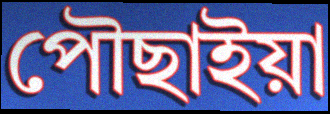
পৌছাইয়া